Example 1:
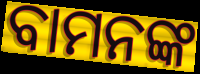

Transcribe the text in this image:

ବାମନଙ୍କ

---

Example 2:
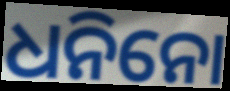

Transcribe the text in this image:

ଧନିନୋ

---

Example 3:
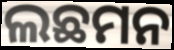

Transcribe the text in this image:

ଲଛମନ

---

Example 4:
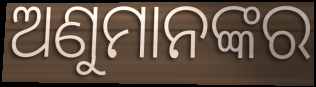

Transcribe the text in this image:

ଅଣୁମାନଙ୍କର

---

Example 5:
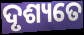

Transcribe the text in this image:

ଦୃଶ୍ୟତେ